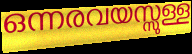
ഒന്നരവയസ്സുള്ള